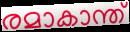
രമാകാന്ത്